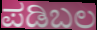
ಪಡಿಬಲ